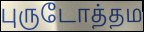
புருடோத்தம